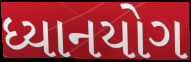
ધ્યાનયોગ